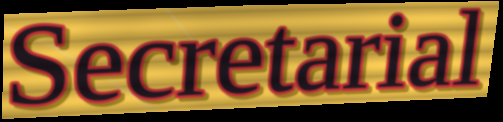
Secretarial